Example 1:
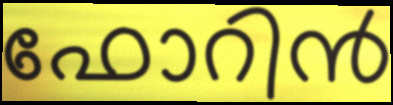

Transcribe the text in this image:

ഫോറിൻ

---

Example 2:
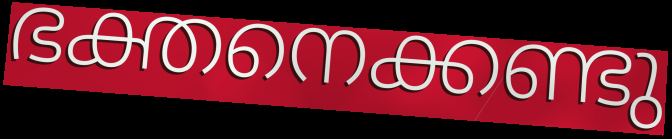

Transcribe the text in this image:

ഭക്തനെക്കണ്ടു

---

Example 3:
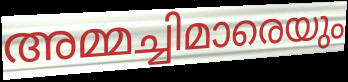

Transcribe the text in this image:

അമ്മച്ചിമാരെയും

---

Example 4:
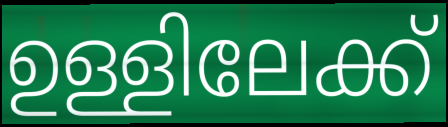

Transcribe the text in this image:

ഉള്ളിലേക്ക്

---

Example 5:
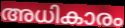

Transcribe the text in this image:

അധികാരം